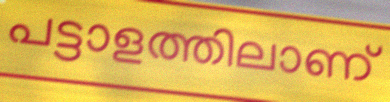
പട്ടാളത്തിലാണ്